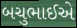
બચુભાઈએ